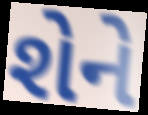
શેને